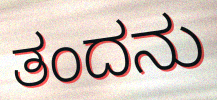
ತಂದನು